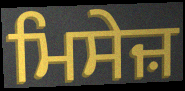
ਮਿਸੇਜ਼